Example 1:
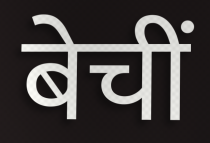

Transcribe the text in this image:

बेचीं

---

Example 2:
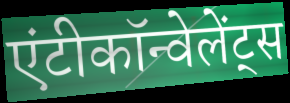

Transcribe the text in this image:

एंटीकॉन्वेलेंट्स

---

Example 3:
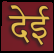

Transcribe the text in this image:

देई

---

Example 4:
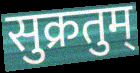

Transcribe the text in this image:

सुक्रतुम्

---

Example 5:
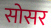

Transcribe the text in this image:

सोसर